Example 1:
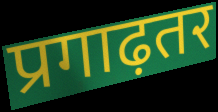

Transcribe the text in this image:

प्रगाढ़तर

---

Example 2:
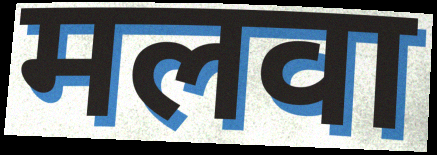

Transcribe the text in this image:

मलवा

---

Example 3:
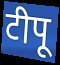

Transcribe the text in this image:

टीपू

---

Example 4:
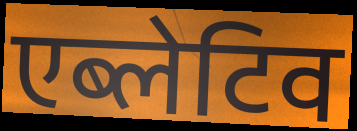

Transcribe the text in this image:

एब्लेटिव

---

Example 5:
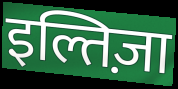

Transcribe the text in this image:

इल्तिज़ा